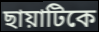
ছায়াটিকে